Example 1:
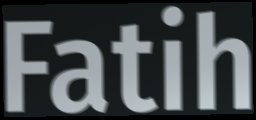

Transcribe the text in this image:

Fatih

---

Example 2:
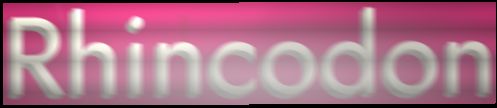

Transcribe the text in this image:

Rhincodon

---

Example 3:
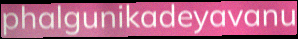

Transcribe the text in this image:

phalgunikadeyavanu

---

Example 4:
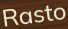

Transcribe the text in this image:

Rasto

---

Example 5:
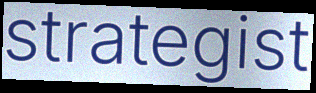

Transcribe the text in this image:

strategist